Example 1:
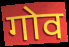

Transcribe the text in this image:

गोव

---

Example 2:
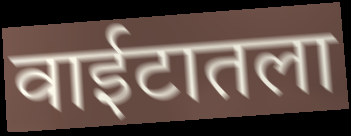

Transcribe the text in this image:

वाईटातला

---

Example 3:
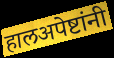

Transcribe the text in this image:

हालअपेष्टांनी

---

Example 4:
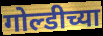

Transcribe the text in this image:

गोल्डीच्या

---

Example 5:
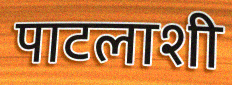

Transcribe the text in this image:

पाटलाशी